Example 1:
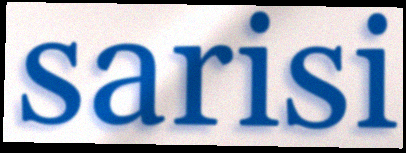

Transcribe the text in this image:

sarisi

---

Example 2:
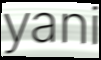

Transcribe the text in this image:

yani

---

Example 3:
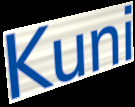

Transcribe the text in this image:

Kuni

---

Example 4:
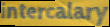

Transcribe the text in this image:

intercalary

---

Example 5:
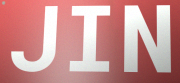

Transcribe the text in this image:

JIN